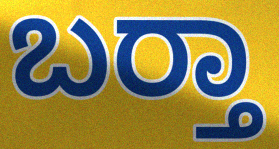
ಬರ‍್ತಾ